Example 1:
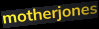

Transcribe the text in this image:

motherjones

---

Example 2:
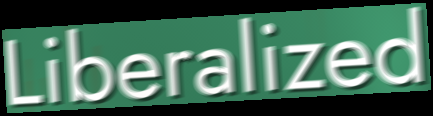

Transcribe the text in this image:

Liberalized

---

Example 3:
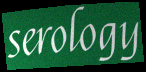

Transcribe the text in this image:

serology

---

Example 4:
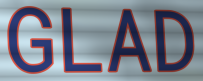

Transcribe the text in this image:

GLAD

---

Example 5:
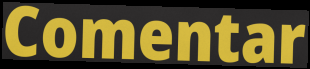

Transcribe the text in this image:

Comentar